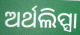
ଅର୍ଥଲିପ୍ସା